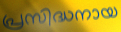
പ്രസിദ്ധനായ